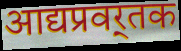
आद्यप्रवर्तक